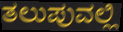
ತಲುಪುವಲ್ಲಿ